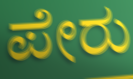
ಪೇರು